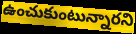
ఉంచుకుంటున్నారని